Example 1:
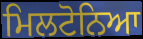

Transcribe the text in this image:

ਮਿਲਟੋਨਿਆ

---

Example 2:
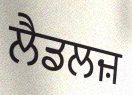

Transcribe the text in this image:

ਲੈਡਲਜ਼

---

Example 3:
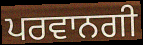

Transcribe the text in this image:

ਪਰਵਾਨਗੀ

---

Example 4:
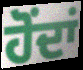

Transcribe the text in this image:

ਹੋਂਦਾਂ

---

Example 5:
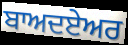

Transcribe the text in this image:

ਬਾਅਦਏਅਰ